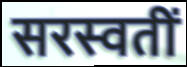
सरस्वतीं